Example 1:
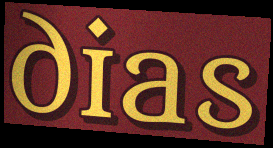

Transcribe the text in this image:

dias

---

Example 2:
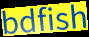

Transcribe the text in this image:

bdfish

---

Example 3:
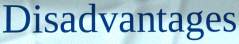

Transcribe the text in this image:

Disadvantages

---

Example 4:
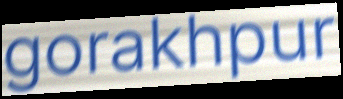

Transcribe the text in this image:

gorakhpur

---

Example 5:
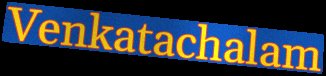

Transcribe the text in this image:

Venkatachalam